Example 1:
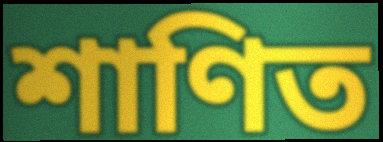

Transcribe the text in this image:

শাণিত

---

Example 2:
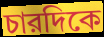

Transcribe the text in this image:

চারদিকে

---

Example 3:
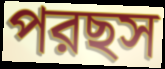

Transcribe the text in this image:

পরছস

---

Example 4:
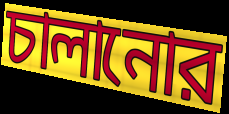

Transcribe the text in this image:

চালানোর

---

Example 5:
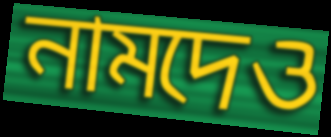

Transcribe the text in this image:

নামদেও